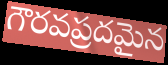
గౌరవప్రదమైన